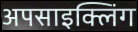
अपसाइक्लिंग